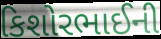
કિશોરભાઈની